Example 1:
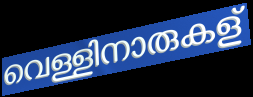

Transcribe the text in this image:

വെള്ളിനാരുകള്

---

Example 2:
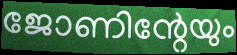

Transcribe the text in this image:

ജോണിന്റേയും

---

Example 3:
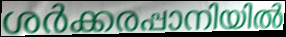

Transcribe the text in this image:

ശർക്കരപ്പാനിയിൽ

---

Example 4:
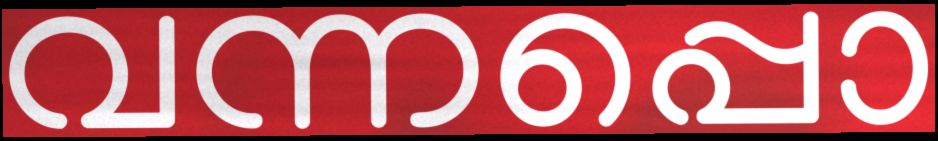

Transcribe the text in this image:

വന്നപ്പൊ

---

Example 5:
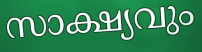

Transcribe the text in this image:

സാക്ഷ്യവും